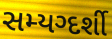
સમ્યગ્દર્શી